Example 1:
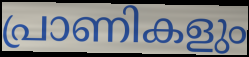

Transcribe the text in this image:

പ്രാണികളും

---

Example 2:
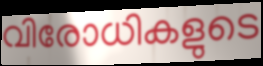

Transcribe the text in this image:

വിരോധികളുടെ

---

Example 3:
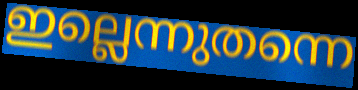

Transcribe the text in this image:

ഇല്ലെന്നുതന്നെ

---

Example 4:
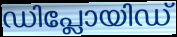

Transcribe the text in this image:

ഡിപ്ലോയിഡ്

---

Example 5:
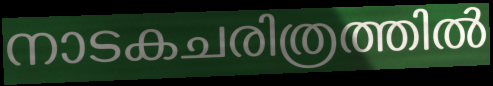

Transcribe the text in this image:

നാടകചരിത്രത്തിൽ